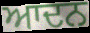
ਆਦਨ